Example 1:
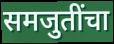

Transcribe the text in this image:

समजुतींचा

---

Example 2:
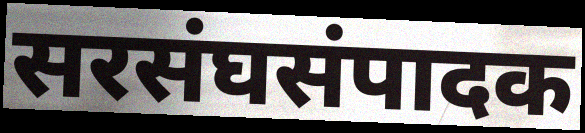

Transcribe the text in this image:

सरसंघसंपादक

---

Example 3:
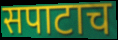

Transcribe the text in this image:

सपाटाच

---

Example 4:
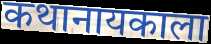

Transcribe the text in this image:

कथानायकाला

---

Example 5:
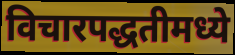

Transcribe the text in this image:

विचारपद्धतीमध्ये